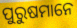
ପୁରୁଷମାନେ